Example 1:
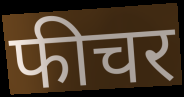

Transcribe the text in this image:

फीचर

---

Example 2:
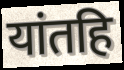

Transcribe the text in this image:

यांतहि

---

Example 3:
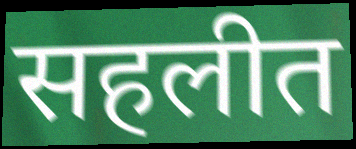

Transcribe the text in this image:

सहलीत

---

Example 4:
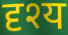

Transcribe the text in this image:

दृश्य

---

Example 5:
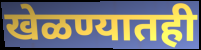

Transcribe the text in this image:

खेळण्यातही